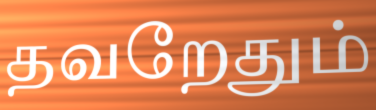
தவறேதும்